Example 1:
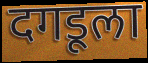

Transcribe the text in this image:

दगडूला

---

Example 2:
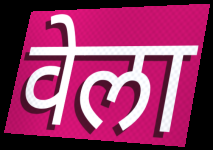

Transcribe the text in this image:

वेला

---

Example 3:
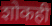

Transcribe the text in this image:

शोकही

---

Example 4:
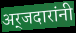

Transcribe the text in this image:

अर्जदारांनी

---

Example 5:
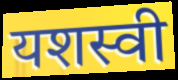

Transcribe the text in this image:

यशस्‍वी